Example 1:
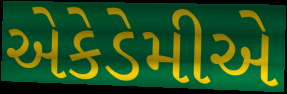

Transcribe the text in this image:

એકેડેમીએ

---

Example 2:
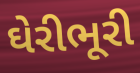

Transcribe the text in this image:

ઘેરીભૂરી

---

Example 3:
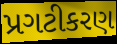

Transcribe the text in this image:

પ્રગટીકરણ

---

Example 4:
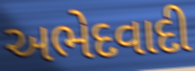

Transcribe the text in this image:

અભેદવાદી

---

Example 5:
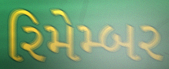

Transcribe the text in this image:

રિમેમ્બર